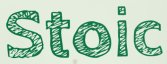
Stoic